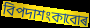
বিপদাশংকাবোৰ